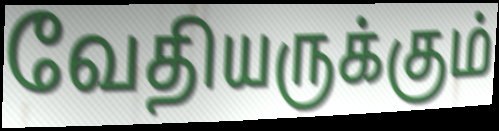
வேதியருக்கும்